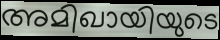
അമിഖായിയുടെ